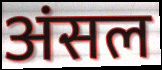
अंसल